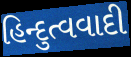
હિન્દુત્વવાદી